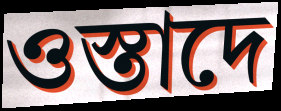
ওস্তাদে